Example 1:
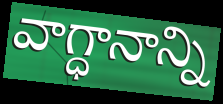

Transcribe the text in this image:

వాగ్ధానాన్ని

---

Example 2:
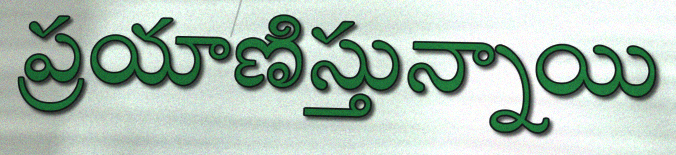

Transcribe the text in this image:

ప్రయాణిస్తున్నాయి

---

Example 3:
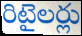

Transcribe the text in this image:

రిటైలర్లు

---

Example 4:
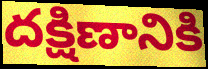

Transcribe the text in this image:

దక్షిణానికి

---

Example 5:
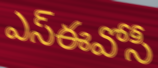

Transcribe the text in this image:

ఎస్ఈవోసీ